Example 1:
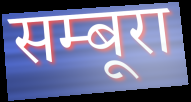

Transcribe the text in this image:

सम्बूरा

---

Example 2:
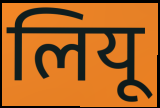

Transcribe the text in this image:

लियू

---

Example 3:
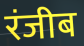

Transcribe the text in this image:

रंजीब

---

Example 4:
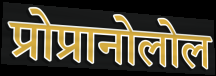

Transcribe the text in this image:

प्रोप्रानोलोल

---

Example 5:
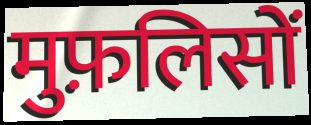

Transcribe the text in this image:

मुफ़लिसों